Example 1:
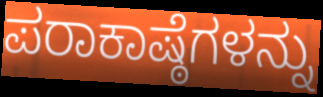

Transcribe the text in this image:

ಪರಾಕಾಷ್ಠೆಗಳನ್ನು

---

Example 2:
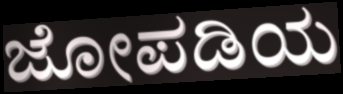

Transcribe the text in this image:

ಜೋಪಡಿಯ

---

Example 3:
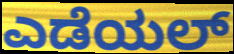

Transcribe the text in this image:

ಎಡೆಯಲ್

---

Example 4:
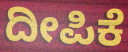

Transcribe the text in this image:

ದೀಪಿಕೆ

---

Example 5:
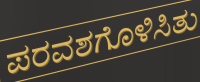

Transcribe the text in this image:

ಪರವಶಗೊಳಿಸಿತು